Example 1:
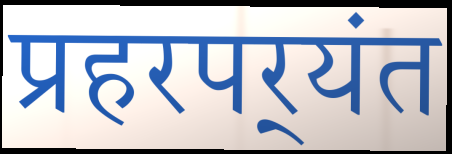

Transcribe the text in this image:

प्रहरपर्यंत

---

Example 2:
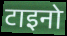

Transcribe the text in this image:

टाइनो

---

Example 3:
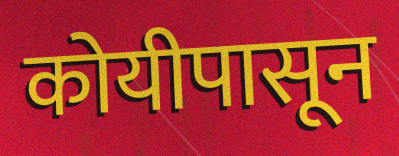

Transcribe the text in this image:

कोयीपासून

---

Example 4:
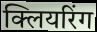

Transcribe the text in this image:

क्लियरिंग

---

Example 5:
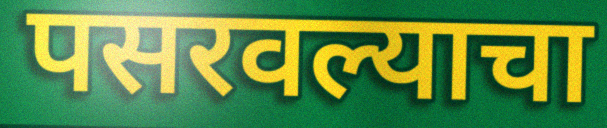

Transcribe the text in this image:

पसरवल्याचा